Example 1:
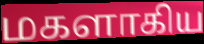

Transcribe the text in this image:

மகளாகிய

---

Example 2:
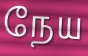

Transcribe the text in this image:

நேய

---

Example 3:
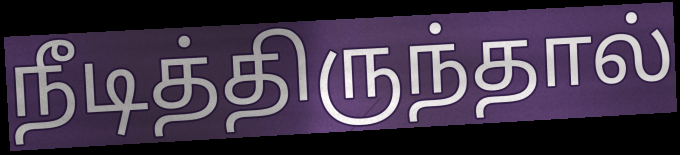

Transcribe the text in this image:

நீடித்திருந்தால்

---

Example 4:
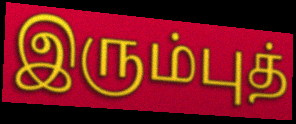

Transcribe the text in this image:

இரும்புத்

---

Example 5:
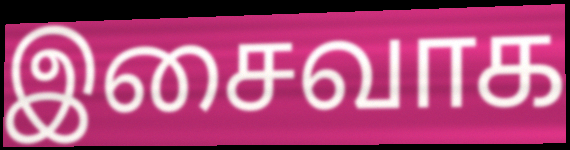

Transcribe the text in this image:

இசைவாக